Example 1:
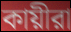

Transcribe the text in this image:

কায়ীরা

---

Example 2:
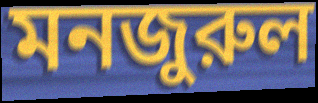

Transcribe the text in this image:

মনজুরুল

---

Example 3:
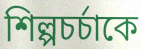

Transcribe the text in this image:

শিল্পচর্চাকে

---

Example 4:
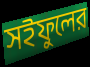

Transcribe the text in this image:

সইফুলের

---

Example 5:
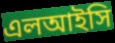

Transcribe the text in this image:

এলআইসি